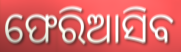
ଫେରିଆସିବ